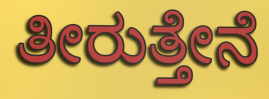
ತೀರುತ್ತೇನೆ